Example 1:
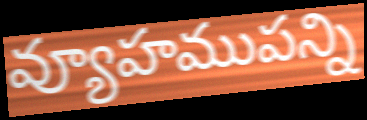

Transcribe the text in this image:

వ్యూహముపన్ని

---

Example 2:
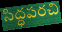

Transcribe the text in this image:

సిద్ధపరచి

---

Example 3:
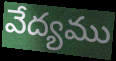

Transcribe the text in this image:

వేద్యము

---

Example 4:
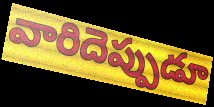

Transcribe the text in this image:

వారిదెప్పుడూ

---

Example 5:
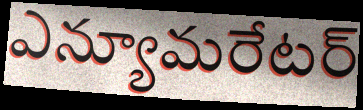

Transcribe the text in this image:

ఎన్యూమరేటర్